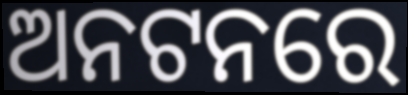
ଅନଟନରେ